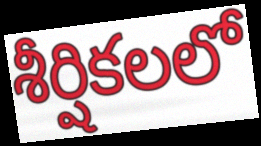
శీర్షికలలో